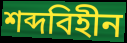
শব্দবিহীন